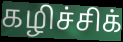
கழிச்சிக்